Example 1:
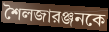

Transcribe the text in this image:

শৈলজারঞ্জনকে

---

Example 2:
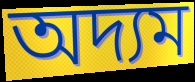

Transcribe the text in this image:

অদ্যম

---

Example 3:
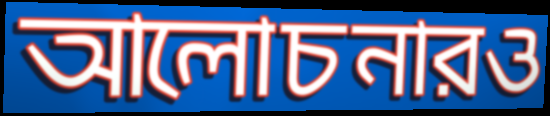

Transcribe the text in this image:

আলোচনারও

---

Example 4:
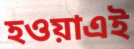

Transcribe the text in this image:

হওয়াএই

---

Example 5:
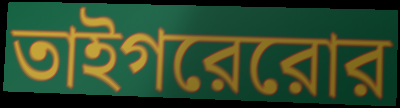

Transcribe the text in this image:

তাইগরেরোর